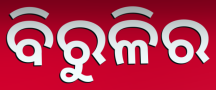
ବିରୁଳିର